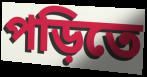
পড়িতে